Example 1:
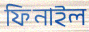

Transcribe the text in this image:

ফিনাইল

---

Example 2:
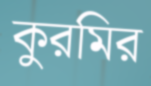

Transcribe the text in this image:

কুরমির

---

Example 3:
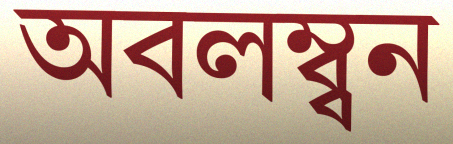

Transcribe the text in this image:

অবলম্ব্বন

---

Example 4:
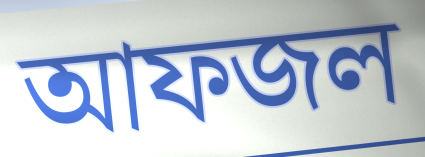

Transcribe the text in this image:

আফজল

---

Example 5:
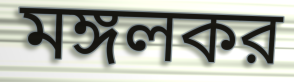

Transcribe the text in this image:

মঙ্গলকর